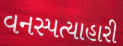
વનસ્પત્યાહારી